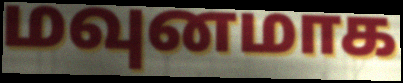
மவுனமாக